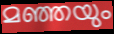
മഞ്ഞയും